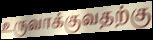
உருவாக்குவதற்கு